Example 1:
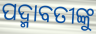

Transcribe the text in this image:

ପଦ୍ମାବତୀଙ୍କୁ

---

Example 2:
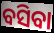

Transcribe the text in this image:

ବସିବା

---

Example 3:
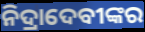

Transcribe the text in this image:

ନିଦ୍ରାଦେବୀଙ୍କର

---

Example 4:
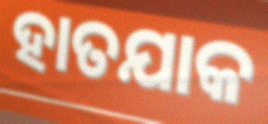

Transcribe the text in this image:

ହାତଯାକ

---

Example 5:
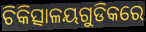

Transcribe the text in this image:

ଚିକିତ୍ସାଳୟଗୁଡିକରେ